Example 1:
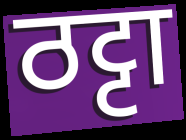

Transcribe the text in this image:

ठट्टा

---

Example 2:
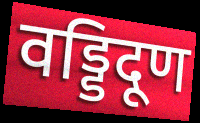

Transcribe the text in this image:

वड्डिदूण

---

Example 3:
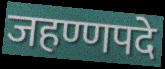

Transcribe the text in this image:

जहण्णपदे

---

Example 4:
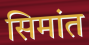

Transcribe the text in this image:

सिमांत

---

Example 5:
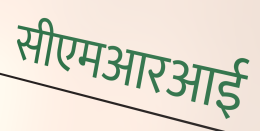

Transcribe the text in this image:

सीएमआरआई